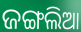
ଜଙ୍ଗଲିଆ